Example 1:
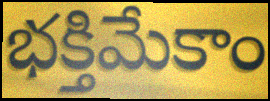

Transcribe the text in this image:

భక్తిమేకాం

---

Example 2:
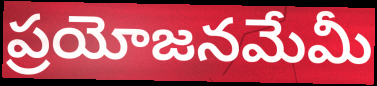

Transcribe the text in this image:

ప్రయోజనమేమీ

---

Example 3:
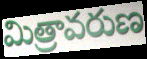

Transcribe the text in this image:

మిత్రావరుణ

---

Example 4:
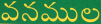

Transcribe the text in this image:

వనముల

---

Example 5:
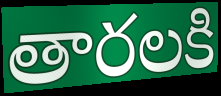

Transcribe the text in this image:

తారలకి